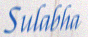
Sulabha